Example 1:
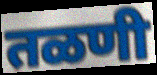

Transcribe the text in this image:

तळणी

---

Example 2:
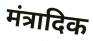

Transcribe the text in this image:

मंत्रादिक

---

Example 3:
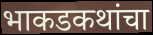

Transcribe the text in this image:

भाकडकथांचा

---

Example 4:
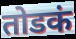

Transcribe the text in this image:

तोडकं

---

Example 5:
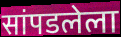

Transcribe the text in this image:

सांपडलेला